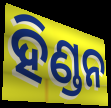
ହିଣ୍ଡନ